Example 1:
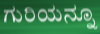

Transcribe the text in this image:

ಗುರಿಯನ್ನೂ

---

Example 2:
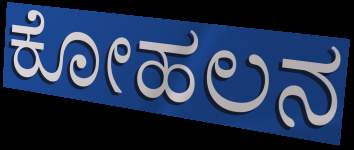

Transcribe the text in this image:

ಕೋಹಲನ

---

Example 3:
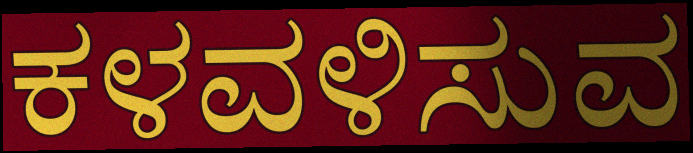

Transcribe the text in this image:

ಕಳವಳಿಸುವ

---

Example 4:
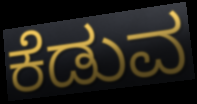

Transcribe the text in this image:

ಕೆಡುವ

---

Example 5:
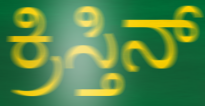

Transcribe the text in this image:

ಕ್ರಿಸ್ತಿನ್